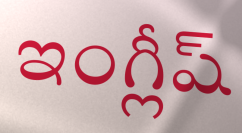
ఇంగ్లీష్